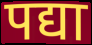
पद्या